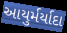
આયુર્મર્યાદા